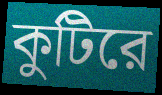
কুটিরে